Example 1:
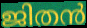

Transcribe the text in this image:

ജിതൻ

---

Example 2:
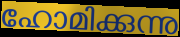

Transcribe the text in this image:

ഹോമിക്കുന്നു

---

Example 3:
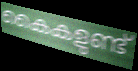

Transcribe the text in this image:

കൈകളുണ്ട്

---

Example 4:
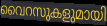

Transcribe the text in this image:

വൈറസുകളുമായി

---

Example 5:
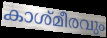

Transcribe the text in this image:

കാശ്മീരവും